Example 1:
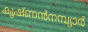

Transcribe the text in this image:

കൃഷ്ണൻനമ്പ്യാർ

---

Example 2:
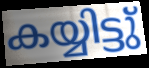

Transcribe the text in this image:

കയ്യിട്ടു്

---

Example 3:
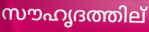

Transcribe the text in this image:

സൗഹൃദത്തില്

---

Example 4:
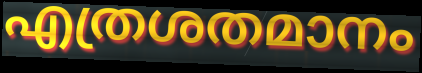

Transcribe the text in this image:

എത്രശതമാനം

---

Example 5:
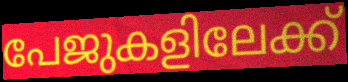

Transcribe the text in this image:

പേജുകളിലേക്ക്